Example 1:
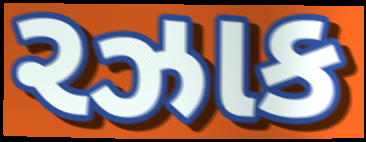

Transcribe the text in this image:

રઝાક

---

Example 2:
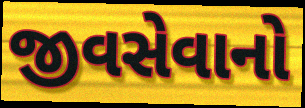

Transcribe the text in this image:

જીવસેવાનો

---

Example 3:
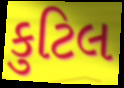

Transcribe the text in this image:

કુટિલ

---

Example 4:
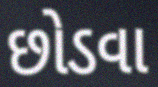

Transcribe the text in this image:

છોડવા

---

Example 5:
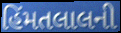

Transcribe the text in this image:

હિંમતલાલની